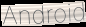
Android